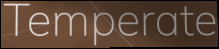
Temperate